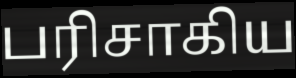
பரிசாகிய